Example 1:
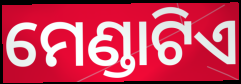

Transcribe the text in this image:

ମେଣ୍ଡାଟିଏ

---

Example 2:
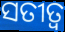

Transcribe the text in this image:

ସତୀତ୍ଵ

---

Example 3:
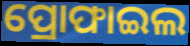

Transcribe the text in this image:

ପ୍ରୋଫାଇଲ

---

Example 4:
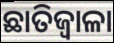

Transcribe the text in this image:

ଛାତିଜ୍ୱାଳା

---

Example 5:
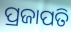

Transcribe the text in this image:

ପ୍ରଜାପତି